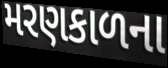
મરણકાળના